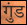
गुंड